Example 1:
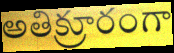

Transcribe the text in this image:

అతిక్రూరంగా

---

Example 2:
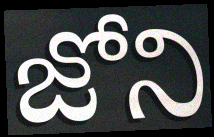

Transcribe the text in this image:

జోని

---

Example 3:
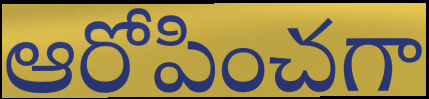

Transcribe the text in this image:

ఆరోపించగా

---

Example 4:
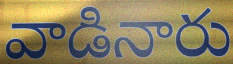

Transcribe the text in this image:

వాడినారు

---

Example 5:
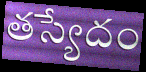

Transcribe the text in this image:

తస్యేదం